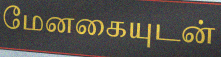
மேனகையுடன்